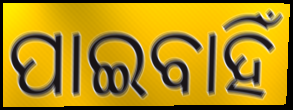
ପାଇବାହିଁ